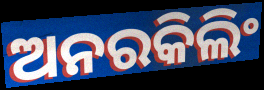
ଅନରକିଲିଂ